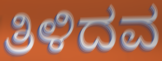
ತಿಳಿದವ